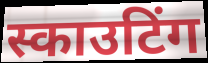
स्काउटिंग